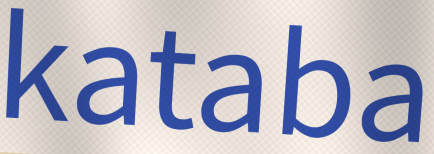
kataba